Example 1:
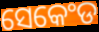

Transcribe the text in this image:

ସେକେଂଡ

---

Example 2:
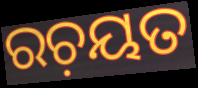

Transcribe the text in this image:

ରଚ଼ୟତ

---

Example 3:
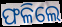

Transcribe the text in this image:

ଫଳିଲେ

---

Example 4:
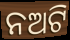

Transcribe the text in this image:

ନଅଟି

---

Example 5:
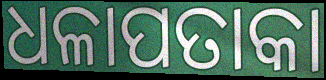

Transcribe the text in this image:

ଧଳାପତାକା